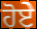
ਹੋਏੇ